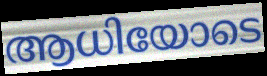
ആധിയോടെ